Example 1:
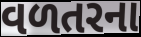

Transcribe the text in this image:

વળતરના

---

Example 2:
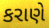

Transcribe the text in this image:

કરાણે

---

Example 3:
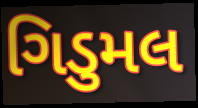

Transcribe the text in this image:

ગિડુમલ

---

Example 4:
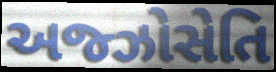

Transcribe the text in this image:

અજ્ઝોસેતિ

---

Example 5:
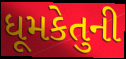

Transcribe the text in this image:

ધૂમકેતુની